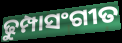
ଢୁମ୍ପାସଂଗୀତ